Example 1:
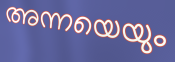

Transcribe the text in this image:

അന്നയെയും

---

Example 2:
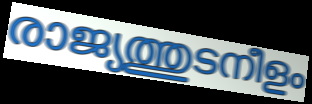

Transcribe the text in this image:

രാജ്യത്തുടനീളം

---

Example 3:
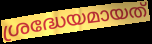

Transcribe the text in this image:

ശ്രദ്ധേയമായത്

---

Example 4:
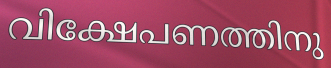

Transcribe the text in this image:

വിക്ഷേപണത്തിനു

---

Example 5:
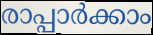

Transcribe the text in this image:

രാപ്പാർക്കാം